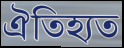
ঐতিহ্যত